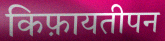
किफ़ायतीपन